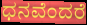
ಧನವೆಂದರೆ